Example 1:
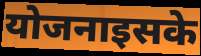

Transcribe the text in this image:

योजनाइसके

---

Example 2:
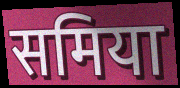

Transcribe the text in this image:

समिया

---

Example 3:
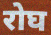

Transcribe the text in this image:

रोघ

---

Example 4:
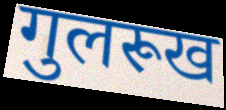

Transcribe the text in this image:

गुलरूख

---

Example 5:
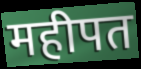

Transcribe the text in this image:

महीपत